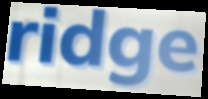
ridge